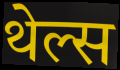
थेल्स